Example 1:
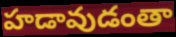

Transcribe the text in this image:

హడావుడంతా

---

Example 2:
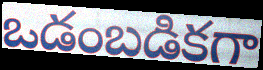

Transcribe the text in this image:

ఒడంబడికగా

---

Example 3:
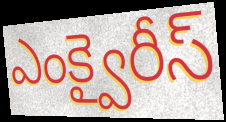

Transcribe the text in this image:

ఎంక్వైరీస్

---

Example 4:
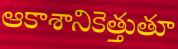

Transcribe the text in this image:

ఆకాశానికెత్తుతూ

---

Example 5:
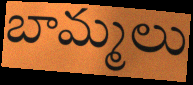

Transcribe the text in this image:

బామ్మలు